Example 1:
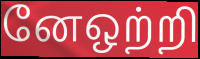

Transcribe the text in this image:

னேஒற்றி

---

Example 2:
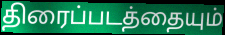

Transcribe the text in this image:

திரைப்படத்தையும்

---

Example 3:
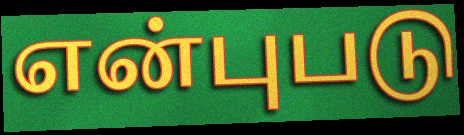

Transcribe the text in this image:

என்புபடு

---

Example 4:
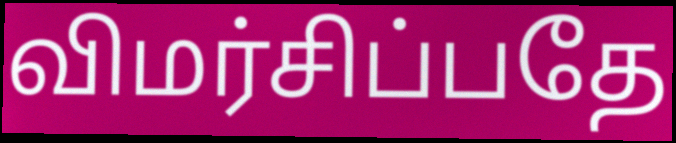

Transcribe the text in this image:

விமர்சிப்பதே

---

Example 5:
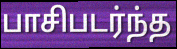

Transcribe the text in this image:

பாசிபடர்ந்த